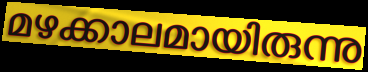
മഴക്കാലമായിരുന്നു